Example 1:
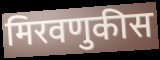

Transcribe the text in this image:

मिरवणुकीस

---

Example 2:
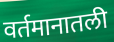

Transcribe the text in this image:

वर्तमानातली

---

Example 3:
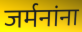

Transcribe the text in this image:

जर्मनांना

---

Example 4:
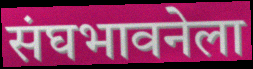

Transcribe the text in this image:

संघभावनेला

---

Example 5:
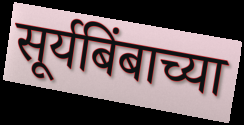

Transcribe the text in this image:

सूर्यबिंबाच्या